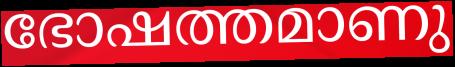
ഭോഷത്തമാണു